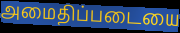
அமைதிப்படையை